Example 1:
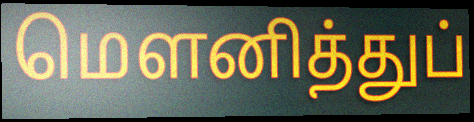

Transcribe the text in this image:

மெளனித்துப்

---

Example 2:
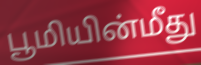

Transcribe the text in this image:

பூமியின்மீது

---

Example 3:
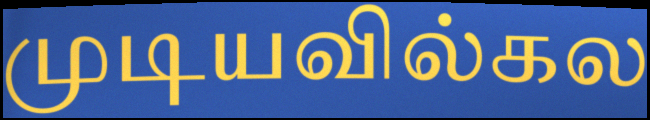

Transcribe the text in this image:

முடியவில்கல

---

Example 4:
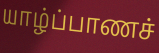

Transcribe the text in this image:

யாழ்ப்பாணச்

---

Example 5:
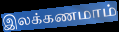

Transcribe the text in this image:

இலக்கணமாம்